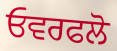
ਓਵਰਫਲੋ